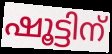
ഷൂട്ടിന്